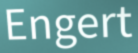
Engert